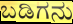
ಬಡಿಗನು